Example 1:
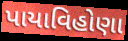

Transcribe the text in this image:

પાયાવિહોણા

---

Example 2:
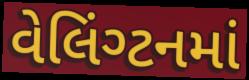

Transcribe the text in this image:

વેલિંગ્ટનમાં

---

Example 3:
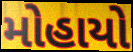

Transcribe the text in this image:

મોહાયો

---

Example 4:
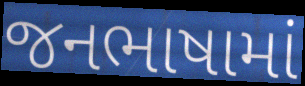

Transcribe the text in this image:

જનભાષામાં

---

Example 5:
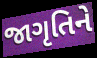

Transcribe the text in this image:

જાગૃતિને